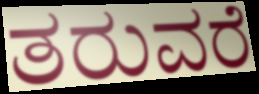
ತರುವರೆ